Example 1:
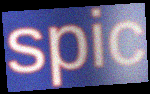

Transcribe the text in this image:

spic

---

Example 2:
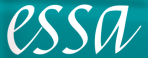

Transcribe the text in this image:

essa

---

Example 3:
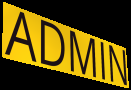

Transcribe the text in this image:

ADMIN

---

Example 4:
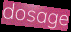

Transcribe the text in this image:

dosage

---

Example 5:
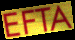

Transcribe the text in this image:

EFTA